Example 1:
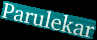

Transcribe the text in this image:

Parulekar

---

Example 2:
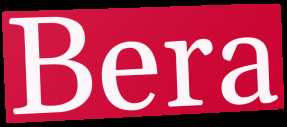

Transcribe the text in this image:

Bera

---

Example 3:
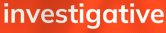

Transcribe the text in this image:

investigative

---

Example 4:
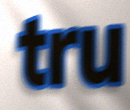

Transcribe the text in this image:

tru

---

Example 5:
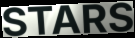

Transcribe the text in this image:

STARS